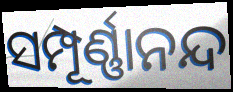
ସମ୍ପୂର୍ଣ୍ଣାନନ୍ଦ